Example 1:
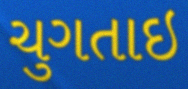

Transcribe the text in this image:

ચુગતાઇ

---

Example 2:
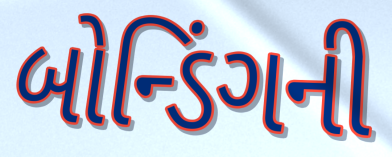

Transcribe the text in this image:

બોન્ડિંગની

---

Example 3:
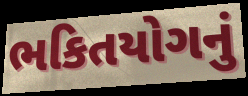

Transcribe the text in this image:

ભકિતયોગનું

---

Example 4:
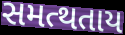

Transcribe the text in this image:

સમત્થતાય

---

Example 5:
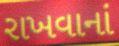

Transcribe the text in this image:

રાખવાનાં